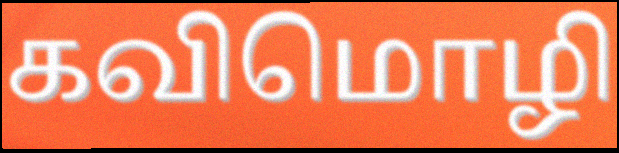
கவிமொழி